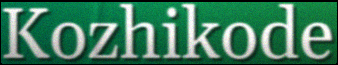
Kozhikode